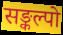
सङ्कल्पो